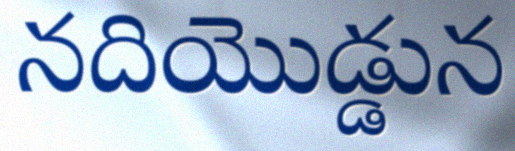
నదియొడ్డున